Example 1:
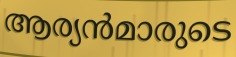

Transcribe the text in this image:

ആര്യൻമാരുടെ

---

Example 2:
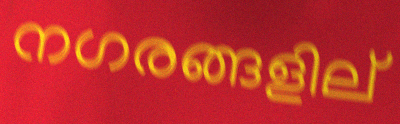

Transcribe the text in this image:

നഗരങ്ങളില്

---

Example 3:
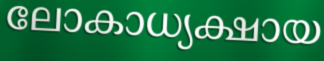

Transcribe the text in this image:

ലോകാധ്യക്ഷായ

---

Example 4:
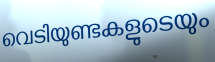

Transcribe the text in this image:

വെടിയുണ്ടകളുടെയും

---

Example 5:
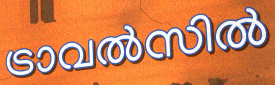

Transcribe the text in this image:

ട്രാവൽസിൽ